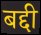
बद्दी